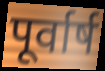
पूर्वार्ष